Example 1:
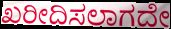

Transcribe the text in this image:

ಖರೀದಿಸಲಾಗದೇ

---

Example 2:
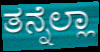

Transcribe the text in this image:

ತನ್ನೆಲ್ಲಾ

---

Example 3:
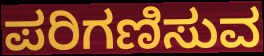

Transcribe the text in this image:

ಪರಿಗಣಿಸುವ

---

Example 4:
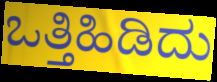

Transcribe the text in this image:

ಒತ್ತಿಹಿಡಿದು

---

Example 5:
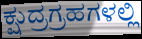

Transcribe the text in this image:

ಕ್ಷುದ್ರಗ್ರಹಗಳಲ್ಲಿ